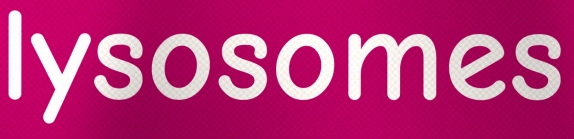
lysosomes